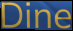
Dine